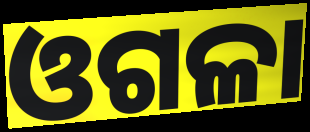
ଓଗଳା